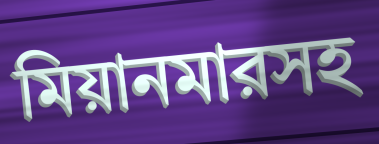
মিয়ানমারসহ